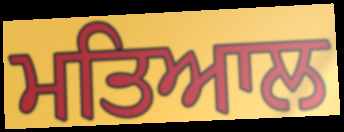
ਮਤਿਆਲ